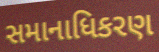
સમાનાધિકરણ